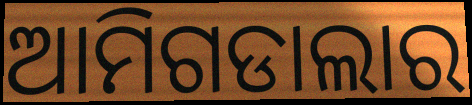
ଆମିଗଡାଲାର